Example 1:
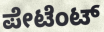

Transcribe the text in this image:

ಪೇಟೆಂಟ್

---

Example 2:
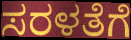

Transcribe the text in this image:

ಸರಳತೆಗೆ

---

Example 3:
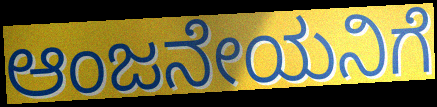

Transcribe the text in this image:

ಆಂಜನೇಯನಿಗೆ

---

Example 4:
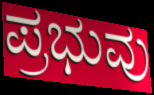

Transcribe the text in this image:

ಪ್ರಭುವು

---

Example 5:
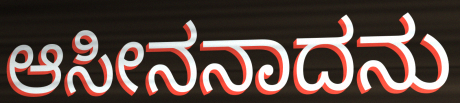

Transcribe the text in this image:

ಆಸೀನನಾದನು